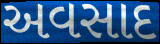
અવસાદ